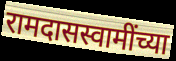
रामदासस्वामींच्या